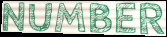
NUMBER